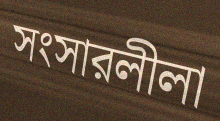
সংসারলীলা